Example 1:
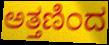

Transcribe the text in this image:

ಅತ್ತಣಿಂದ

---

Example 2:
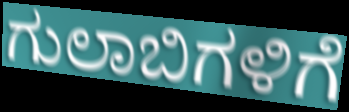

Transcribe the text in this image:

ಗುಲಾಬಿಗಳಿಗೆ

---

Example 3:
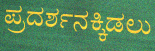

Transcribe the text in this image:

ಪ್ರದರ್ಶನಕ್ಕಿಡಲು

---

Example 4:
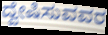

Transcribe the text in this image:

ದ್ವೇಷಿಸುವವರ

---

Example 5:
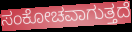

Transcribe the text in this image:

ಸಂಕೋಚವಾಗುತ್ತದೆ